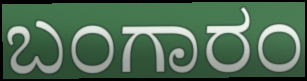
ಬಂಗಾರಂ